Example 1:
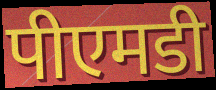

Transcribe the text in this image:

पीएमडी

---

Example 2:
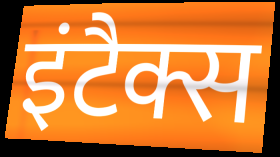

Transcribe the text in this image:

इंटैक्स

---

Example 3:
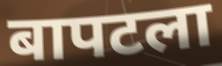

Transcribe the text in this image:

बापटला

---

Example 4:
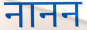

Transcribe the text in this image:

नानन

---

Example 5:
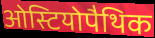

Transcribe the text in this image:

ओस्टियोपैथिक